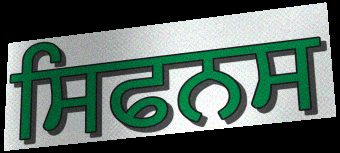
ਸਿਫਨਸ